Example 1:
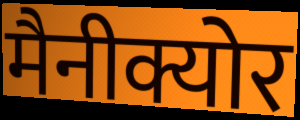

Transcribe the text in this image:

मैनीक्योर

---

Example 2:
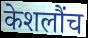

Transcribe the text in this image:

केशलौंच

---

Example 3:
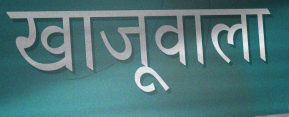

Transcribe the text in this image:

खाजूवाला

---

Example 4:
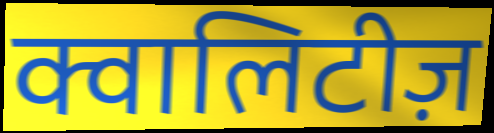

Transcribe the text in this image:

क्वालिटीज़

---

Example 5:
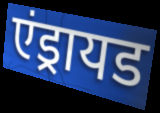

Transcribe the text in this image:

एंड्रायड